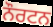
ਨੌਰਟਨ